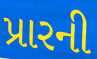
પ્રારની